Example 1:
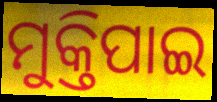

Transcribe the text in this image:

ମୁକ୍ତିପାଇ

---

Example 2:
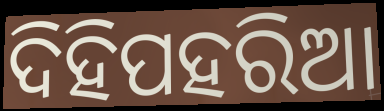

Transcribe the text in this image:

ଦିହିପହରିଆ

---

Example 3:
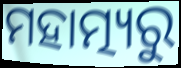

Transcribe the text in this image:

ମହାତ୍ମ୍ୟରୁ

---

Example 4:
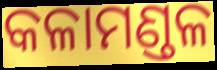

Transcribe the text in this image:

କଳାମଣ୍ଡଳ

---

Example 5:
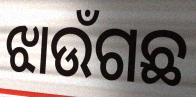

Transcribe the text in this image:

ଝାଉଁଗଛ